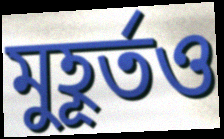
মুহূর্তও